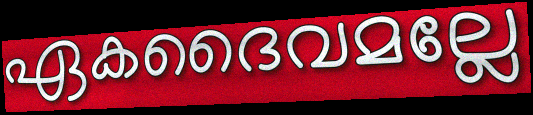
ഏകദൈവമല്ലേ